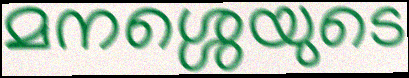
മനശ്ശെയുടെ